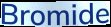
Bromide